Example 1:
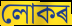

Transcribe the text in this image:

লোকৰ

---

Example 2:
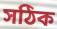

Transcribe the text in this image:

সঠিক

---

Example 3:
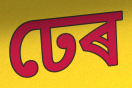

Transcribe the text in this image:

ঢেৰ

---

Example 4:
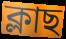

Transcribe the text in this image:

ক্লাছ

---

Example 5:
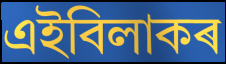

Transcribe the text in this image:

এইবিলাকৰ